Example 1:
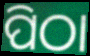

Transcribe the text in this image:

ପିଠା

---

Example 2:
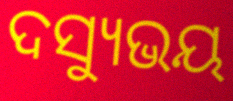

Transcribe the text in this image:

ଦସ୍ୟୁଭୟ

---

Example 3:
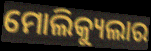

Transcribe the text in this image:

ମୋଲିକ୍ୟୁଲାର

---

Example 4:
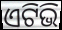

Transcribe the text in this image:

ଏଟିଭି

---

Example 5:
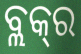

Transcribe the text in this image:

ବ୍ଲକ୍‍ର